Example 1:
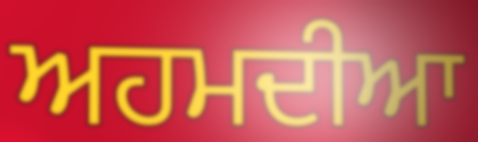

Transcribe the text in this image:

ਅਹਮਦੀਆ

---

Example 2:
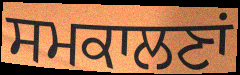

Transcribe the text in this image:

ਸਮਕਾਲਣਾਂ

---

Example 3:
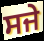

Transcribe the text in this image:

ਸਜੇ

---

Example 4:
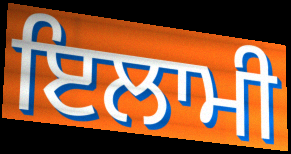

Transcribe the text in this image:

ਇਲਾਮੀ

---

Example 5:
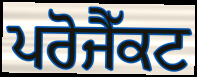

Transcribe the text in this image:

ਪਰੋਜੈੱਕਟ